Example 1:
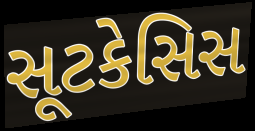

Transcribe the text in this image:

સૂટકેસિસ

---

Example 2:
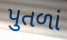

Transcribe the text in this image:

પુતળાં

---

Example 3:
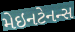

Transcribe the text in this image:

મેઇનટેનન્સ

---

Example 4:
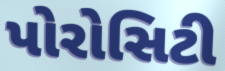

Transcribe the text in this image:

પોરોસિટી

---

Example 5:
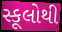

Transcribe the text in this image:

સ્કૂલોથી